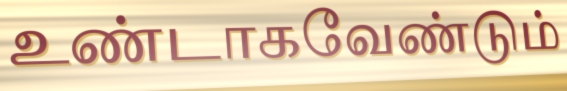
உண்டாகவேண்டும்